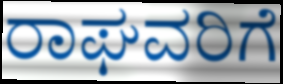
ರಾಘವರಿಗೆ